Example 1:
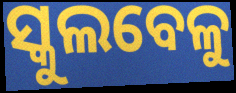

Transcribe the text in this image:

ସ୍କୁଲବେଳୁ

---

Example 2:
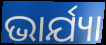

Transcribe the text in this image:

ଭାର୍ଯ୍ୟା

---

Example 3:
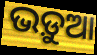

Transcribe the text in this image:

ଭଡ଼ୁଆ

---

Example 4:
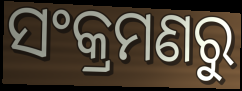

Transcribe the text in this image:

ସଂକ୍ରମଣରୁ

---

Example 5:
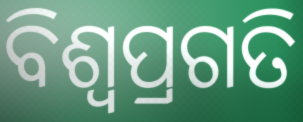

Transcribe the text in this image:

ବିଶ୍ବପ୍ରଗତି